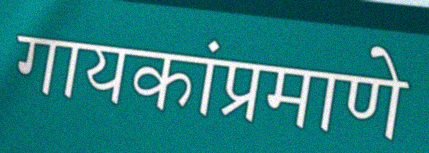
गायकांप्रमाणे